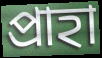
প্রাহা